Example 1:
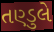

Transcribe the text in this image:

તણ્ડુલે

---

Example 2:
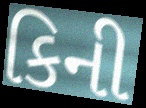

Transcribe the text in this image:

કિની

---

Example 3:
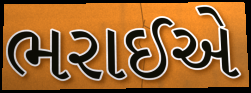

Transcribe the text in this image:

ભરાઈએ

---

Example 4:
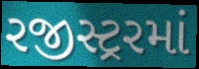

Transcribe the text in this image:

રજીસ્ટ્રરમાં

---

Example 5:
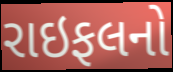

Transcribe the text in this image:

રાઇફલનો